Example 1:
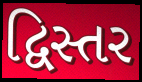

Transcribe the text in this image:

દ્વિસ્તર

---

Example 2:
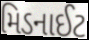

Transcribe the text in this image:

મિડનાઈટ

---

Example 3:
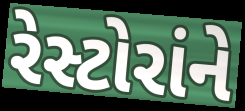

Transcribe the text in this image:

રેસ્ટોરાંને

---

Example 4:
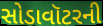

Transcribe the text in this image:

સોડાવૉટરની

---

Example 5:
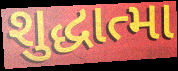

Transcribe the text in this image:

શુદ્ધાત્મા